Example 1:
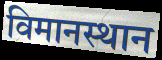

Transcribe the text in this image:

विमानस्थान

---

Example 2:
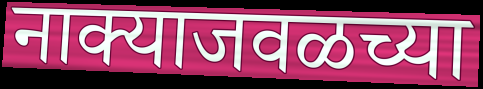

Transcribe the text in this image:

नाक्याजवळच्या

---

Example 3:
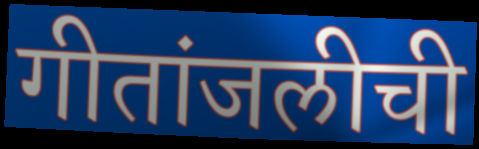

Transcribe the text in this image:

गीतांजलीची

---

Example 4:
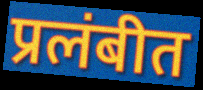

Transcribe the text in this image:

प्रलंबीत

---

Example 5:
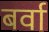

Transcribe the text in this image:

बर्वा